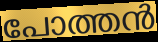
പോത്തൻ